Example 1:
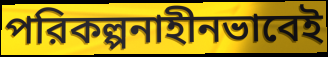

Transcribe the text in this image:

পরিকল্পনাহীনভাবেই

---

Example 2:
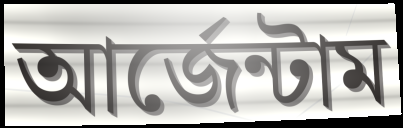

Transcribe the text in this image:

আর্জেন্টাম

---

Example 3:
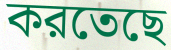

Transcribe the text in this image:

করতেছে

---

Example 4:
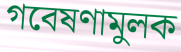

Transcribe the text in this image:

গবেষণামুলক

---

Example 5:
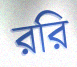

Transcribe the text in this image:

ররি